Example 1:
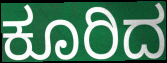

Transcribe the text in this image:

ಕೂರಿದ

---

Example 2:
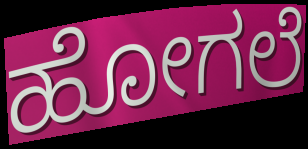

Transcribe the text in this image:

ಹೋಗಲೆ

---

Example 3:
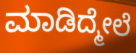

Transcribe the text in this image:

ಮಾಡಿದ್ಮೇಲೆ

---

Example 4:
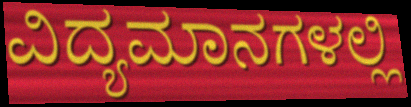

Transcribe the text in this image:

ವಿದ್ಯಮಾನಗಳಲ್ಲಿ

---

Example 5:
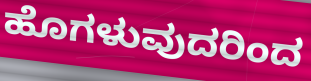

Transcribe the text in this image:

ಹೊಗಳುವುದರಿಂದ